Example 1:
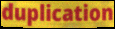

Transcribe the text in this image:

duplication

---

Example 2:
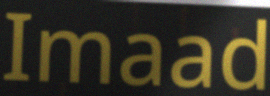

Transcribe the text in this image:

Imaad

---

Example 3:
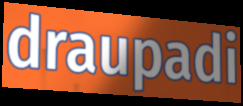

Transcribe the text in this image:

draupadi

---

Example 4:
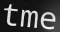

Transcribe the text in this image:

tme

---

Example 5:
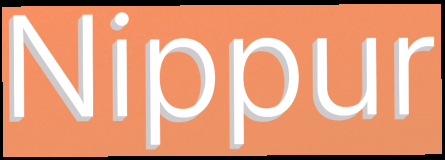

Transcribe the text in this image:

Nippur